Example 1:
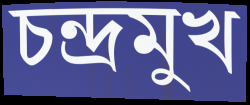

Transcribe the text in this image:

চন্দ্রমুখ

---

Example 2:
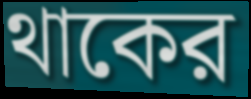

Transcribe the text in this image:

থাকের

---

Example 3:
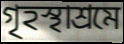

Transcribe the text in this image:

গৃহস্থাশ্রমে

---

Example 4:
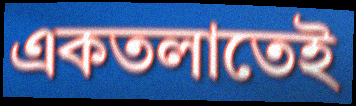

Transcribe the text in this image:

একতলাতেই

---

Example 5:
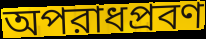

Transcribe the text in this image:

অপরাধপ্রবণ